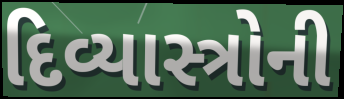
દિવ્યાસ્ત્રોની